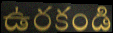
ఉరకండి